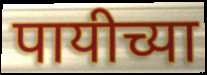
पायीच्या